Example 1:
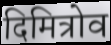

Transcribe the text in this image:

दिमित्रोव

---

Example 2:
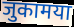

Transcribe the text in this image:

जुकामया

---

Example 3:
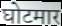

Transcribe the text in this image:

घोटमार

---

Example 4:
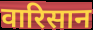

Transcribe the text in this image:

वारिसान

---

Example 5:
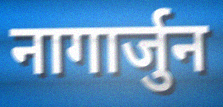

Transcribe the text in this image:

नागार्जुन